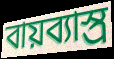
বায়ব্যাস্ত্র